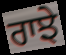
ਰਾਝੇ